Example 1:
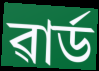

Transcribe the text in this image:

ৱাৰ্ড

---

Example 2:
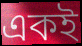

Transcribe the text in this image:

একই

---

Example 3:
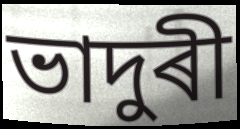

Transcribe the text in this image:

ভাদুৰী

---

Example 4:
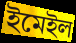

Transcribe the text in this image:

ইমেইল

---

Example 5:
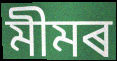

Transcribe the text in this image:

মীমৰ